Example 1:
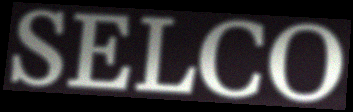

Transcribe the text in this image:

SELCO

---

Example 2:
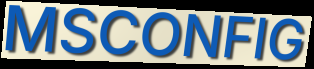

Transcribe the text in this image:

MSCONFIG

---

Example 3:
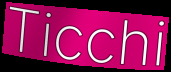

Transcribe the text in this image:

Ticchi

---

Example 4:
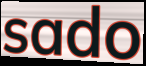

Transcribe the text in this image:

sado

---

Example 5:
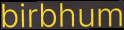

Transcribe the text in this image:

birbhum